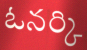
ఓనర్కి